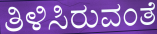
ತಿಳಿಸಿರುವಂತೆ